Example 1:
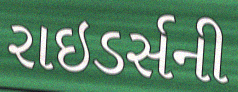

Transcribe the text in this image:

રાઇડર્સની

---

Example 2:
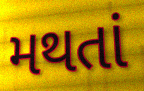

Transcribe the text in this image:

મથતાં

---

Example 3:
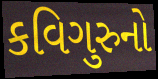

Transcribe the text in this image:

કવિગુરુનો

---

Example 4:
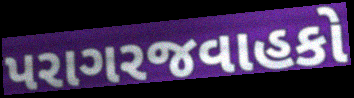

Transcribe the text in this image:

પરાગરજવાહકો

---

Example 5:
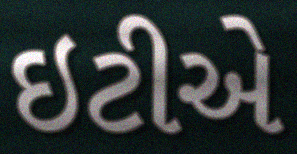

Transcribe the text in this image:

ઇટીએ